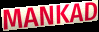
MANKAD